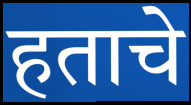
हताचे